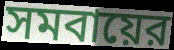
সমবায়ের